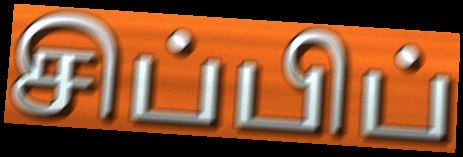
சிப்பிப்